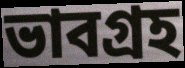
ভাবগ্রহ